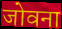
जोवना